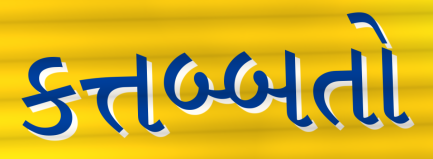
કત્તબ્બતો